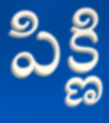
పిక్ణి